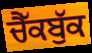
ਚੈੱਕਬੁੱਕ